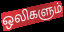
ஒலிகளும்